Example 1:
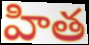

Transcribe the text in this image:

హిత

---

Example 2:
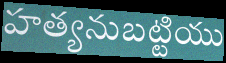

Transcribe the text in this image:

హత్యనుబట్టియు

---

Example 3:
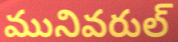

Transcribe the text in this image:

మునివరుల్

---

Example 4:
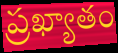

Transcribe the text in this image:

ప్రఖ్యాతం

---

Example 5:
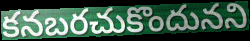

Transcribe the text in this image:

కనబరచుకొందునని